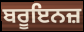
ਬਰੂਇਨਜ਼